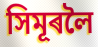
সিমূৰলৈ